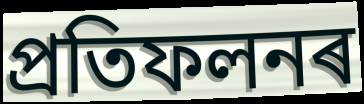
প্ৰতিফলনৰ